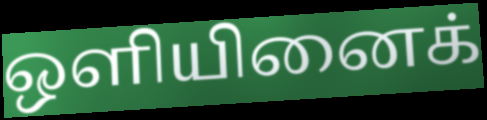
ஒளியினைக்